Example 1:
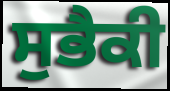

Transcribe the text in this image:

ਸੁਭੈਕੀ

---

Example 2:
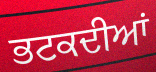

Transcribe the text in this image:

ਭਟਕਦੀਆਂ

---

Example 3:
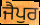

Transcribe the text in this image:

ਜੈਪੁਰ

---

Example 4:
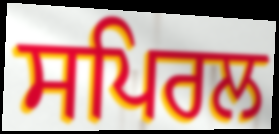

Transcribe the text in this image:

ਸਪਿਰਲ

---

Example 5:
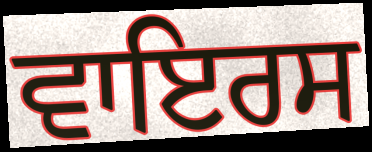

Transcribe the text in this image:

ਵਾਇਰਸ